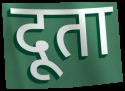
दूता